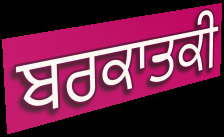
ਬਰਕਾਤਕੀ